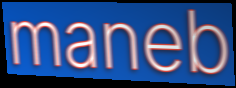
maneb